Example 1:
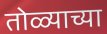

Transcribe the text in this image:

तोळ्याच्या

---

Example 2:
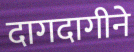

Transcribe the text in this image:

दागदागीने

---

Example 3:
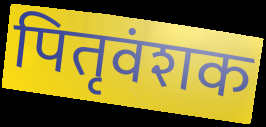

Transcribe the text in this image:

पितृवंशक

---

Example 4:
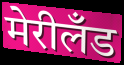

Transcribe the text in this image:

मेरीलँड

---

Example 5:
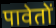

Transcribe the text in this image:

पावेतों